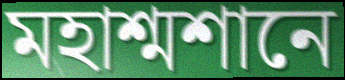
মহাশ্মশানে